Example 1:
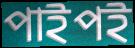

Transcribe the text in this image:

পাইপই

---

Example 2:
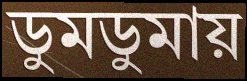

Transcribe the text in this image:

ডুমডুমায়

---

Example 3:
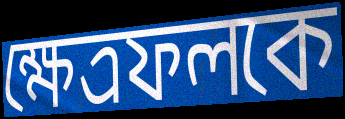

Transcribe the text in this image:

ক্ষেত্রফলকে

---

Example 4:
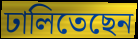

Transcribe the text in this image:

ঢালিতেছেন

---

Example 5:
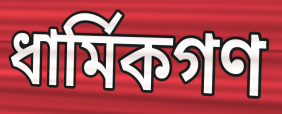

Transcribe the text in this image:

ধার্মিকগণ